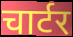
चार्टर